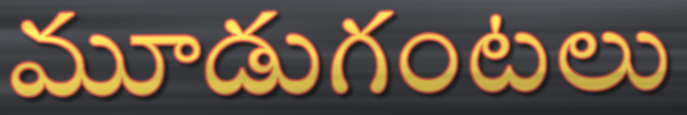
మూడుగంటలు